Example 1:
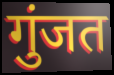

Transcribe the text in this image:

गुंजत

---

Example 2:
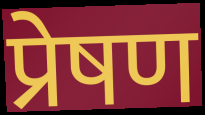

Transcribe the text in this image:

प्रेषण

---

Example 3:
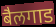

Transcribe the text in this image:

बैलगाड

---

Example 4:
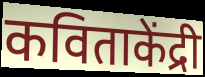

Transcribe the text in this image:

कविताकेंद्री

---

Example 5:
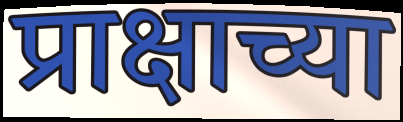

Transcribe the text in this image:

प्राक्षाच्या